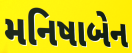
મનિષાબેન